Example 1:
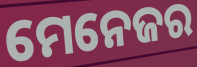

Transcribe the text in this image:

ମେନେଜର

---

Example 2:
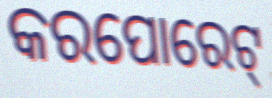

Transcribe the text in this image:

କରପୋରେଟ୍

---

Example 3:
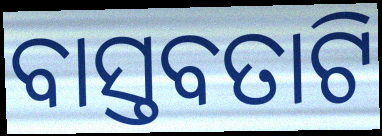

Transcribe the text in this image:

ବାସ୍ତବତାଟି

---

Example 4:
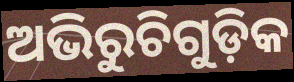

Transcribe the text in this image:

ଅଭିରୁଚିଗୁଡ଼ିକ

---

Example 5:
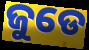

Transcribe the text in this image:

ଜୁଡେ